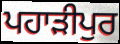
ਪਹਾੜੀਪੁਰ